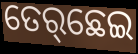
ତେର୍‌ଛେଇ